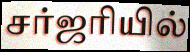
சர்ஜரியில்